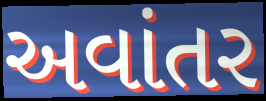
અવાંતર